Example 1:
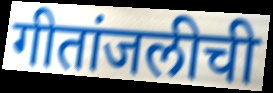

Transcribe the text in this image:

गीतांजलीची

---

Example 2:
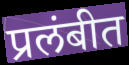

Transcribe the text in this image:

प्रलंबीत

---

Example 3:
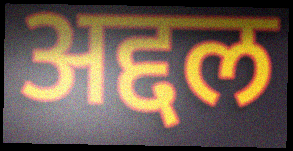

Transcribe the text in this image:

अद्दल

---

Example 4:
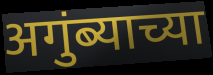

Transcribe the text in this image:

अगुंब्याच्या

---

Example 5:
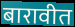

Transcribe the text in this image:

बारावीत